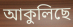
আকুলিছে